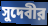
সুদেবীর